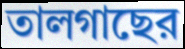
তালগাছের